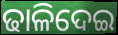
ଢାଳିଦେଇ